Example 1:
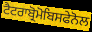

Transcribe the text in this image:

ਟੈਟਰਾਬ੍ਰੋਮੋਬਿਸਫੇਨੋਲ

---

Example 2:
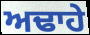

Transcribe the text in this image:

ਅਢਾਹੇ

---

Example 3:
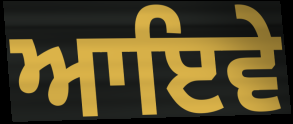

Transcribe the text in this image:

ਆਇਵੇ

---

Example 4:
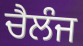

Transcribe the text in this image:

ਚੈਲੰਜ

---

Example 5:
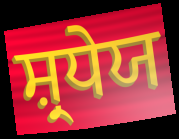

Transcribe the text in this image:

ਸ਼੍ਰਧੇਯ